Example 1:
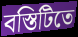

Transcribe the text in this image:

বস্তিটিতে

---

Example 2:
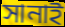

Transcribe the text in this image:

সানাই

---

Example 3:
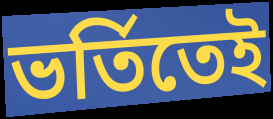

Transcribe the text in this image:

ভর্তিতেই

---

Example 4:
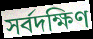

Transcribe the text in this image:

সর্বদক্ষিণ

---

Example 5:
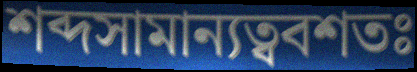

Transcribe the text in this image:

শব্দসামান্যত্ববশতঃ